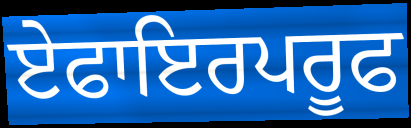
ਏਫਾਇਰਪਰੂਫ